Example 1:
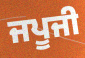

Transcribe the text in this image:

ਜਪੂਜੀ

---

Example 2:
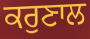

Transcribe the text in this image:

ਕਰੁਣਾਲ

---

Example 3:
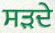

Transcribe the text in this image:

ਸੜਦੇ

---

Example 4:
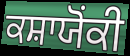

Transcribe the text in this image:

ਕਸ਼ਾਯੋਂਕੀ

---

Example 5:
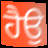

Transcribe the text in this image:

ਹੈਉ